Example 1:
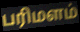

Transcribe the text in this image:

பரிமளம்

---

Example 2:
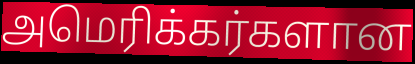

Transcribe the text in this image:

அமெரிக்கர்களான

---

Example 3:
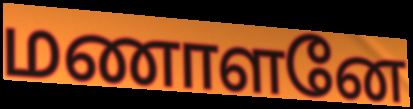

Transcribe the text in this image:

மணாளனே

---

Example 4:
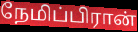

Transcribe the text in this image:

நேமிப்பிரான்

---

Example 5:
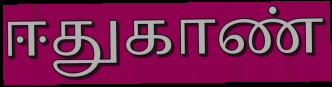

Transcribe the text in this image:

ஈதுகாண்